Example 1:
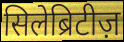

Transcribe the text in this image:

सिलेब्रिटीज़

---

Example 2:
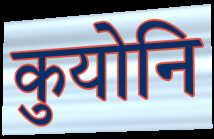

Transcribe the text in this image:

कुयोनि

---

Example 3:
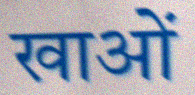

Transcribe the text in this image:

खाओं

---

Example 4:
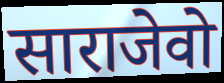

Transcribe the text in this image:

साराजेवो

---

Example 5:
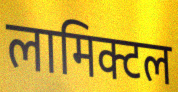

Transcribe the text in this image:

लामिक्टल